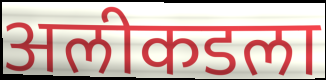
अलीकडला